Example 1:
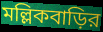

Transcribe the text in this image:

মল্লিকবাড়ির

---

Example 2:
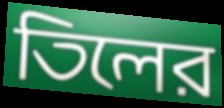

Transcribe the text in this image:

তিলের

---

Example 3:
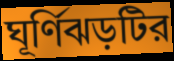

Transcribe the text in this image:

ঘূর্ণিঝড়টির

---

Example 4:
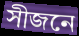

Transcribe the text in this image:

সীজনে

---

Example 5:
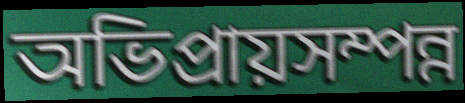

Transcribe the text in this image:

অভিপ্রায়সম্পন্ন